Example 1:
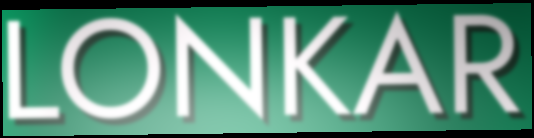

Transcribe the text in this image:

LONKAR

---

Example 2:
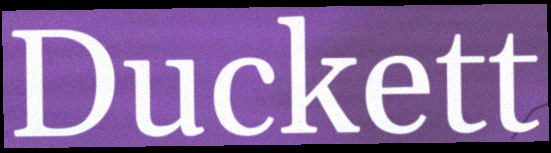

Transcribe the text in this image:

Duckett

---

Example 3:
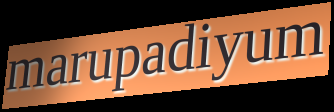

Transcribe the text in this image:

marupadiyum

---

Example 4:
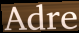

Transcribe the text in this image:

Adre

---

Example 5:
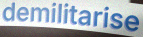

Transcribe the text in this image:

demilitarise